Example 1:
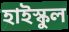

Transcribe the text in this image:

হাইস্কুল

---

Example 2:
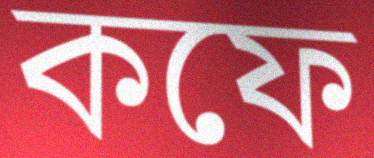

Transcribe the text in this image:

কফে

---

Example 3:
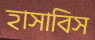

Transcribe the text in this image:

হাসাবিস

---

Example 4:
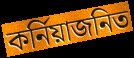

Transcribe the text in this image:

কর্নিয়াজনিত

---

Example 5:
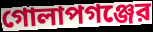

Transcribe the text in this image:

গোলাপগঞ্জের